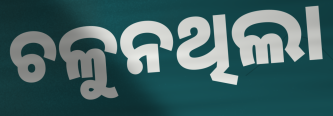
ଚଳୁନଥିଲା